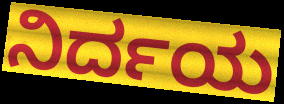
ನಿರ್ದಯ